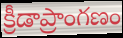
క్రీడాప్రాంగణం